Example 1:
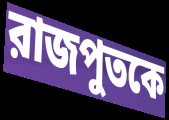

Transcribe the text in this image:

রাজপুতকে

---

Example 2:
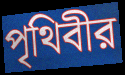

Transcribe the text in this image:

পৃথিবীর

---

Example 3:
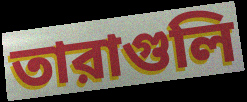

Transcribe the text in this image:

তারাগুলি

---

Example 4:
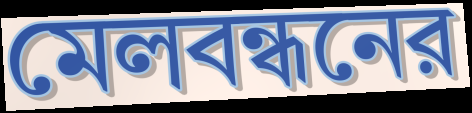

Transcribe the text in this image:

মেলবন্ধনের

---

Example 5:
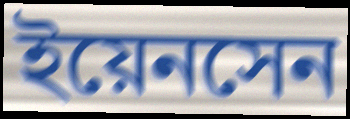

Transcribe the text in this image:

ইয়েনসেন